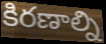
కిరణాల్ని